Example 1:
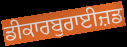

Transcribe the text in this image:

ਡੀਕਾਰਬੁਰਾਈਜ਼ਡ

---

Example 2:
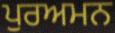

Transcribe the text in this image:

ਪੁਰਅਮਨ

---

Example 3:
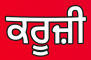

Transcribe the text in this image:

ਕਰੂਜ਼ੀ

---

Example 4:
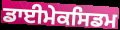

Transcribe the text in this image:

ਡਾਈਮੇਕਸਿਡਮ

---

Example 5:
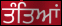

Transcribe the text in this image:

ਤੰਤਿਆਂ